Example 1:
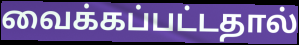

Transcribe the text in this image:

வைக்கப்பட்டதால்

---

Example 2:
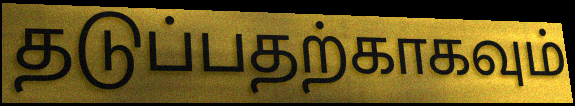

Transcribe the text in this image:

தடுப்பதற்காகவும்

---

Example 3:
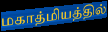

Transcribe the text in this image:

மகாத்மியத்தில்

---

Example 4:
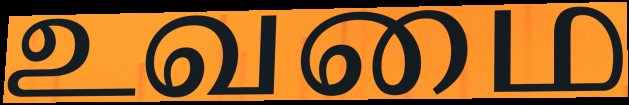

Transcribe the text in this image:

உவமை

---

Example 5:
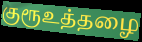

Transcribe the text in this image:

குரூஉத்தழை